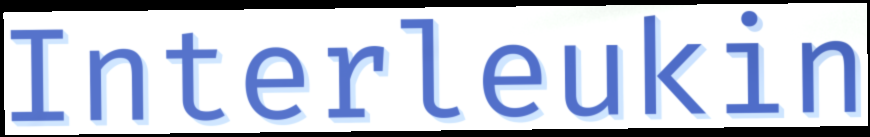
Interleukin